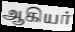
ஆகியர்